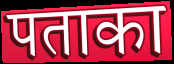
पताका